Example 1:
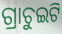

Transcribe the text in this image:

ଗ୍ରାଚୁଇଟି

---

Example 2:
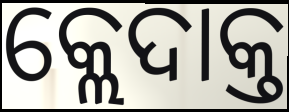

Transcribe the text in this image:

କ୍ଲେଦାକ୍ତ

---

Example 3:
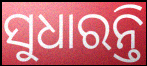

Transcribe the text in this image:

ସୁଧାରନ୍ତି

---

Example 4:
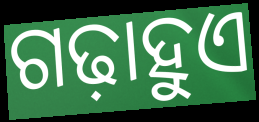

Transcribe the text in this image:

ଗଢ଼ାହୁଏ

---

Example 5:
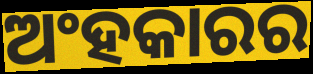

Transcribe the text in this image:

ଅଂହକାରର